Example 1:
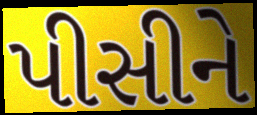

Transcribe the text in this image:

પીસીને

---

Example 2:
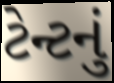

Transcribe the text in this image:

ટેન્ટનું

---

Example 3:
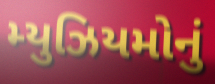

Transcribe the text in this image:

મ્યુઝિયમોનું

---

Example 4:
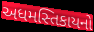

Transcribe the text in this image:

અધમસ્તિકાયનો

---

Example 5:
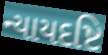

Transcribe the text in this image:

ન્યાયદષ્ટિ